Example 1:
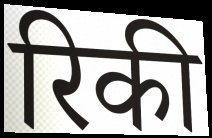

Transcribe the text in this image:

रिकी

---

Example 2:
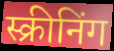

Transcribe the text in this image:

स्क्रीनिंग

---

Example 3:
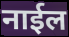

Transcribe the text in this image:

नाईल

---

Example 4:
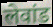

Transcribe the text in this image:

लेवांड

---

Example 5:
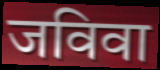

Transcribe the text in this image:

जविवा